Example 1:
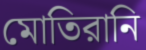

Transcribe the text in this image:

মোতিরানি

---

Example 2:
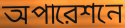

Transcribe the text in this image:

অপারেশনে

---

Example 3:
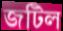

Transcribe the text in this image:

জটিল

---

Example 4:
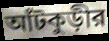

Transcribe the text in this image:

আঁটকুড়ীর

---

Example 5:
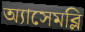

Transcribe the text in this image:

অ্যাসেমব্লি